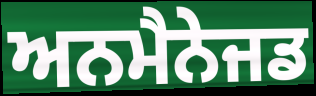
ਅਨਮੈਨੇਜਡ